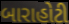
બારાહોટી